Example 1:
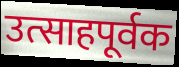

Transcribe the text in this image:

उत्‍साहपूर्वक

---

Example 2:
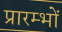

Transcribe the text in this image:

प्रारम्भों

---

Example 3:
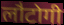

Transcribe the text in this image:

लौटोगी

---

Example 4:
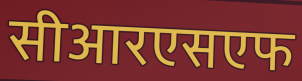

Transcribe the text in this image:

सीआरएसएफ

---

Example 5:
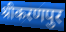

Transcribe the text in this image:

श्रीकरणपुर